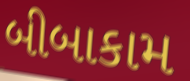
બીબાકામ